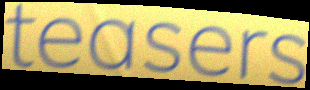
teasers